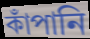
কাঁপানি